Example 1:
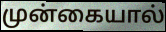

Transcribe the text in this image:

முன்கையால்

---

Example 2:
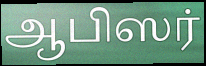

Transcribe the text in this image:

ஆபிஸர்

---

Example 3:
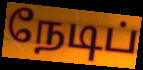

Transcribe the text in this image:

நேடிப்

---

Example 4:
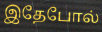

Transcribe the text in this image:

இதேபோல்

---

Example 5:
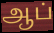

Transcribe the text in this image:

ஆப்